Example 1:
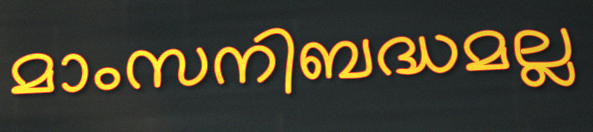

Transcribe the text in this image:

മാംസനിബദ്ധമല്ല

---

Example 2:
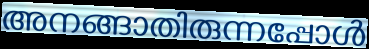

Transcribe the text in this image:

അനങ്ങാതിരുന്നപ്പോൾ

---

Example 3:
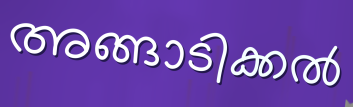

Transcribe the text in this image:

അങ്ങാടിക്കൽ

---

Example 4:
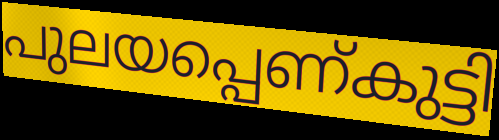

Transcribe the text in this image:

പുലയപ്പെണ്കുട്ടി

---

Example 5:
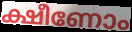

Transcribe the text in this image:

ക്ഷീണോം